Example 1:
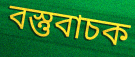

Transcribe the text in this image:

বস্তুবাচক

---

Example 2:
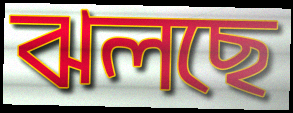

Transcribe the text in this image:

ঝলছে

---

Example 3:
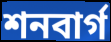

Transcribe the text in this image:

শনবার্গ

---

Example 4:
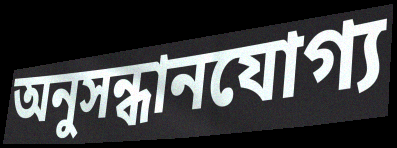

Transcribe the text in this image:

অনুসন্ধানযোগ্য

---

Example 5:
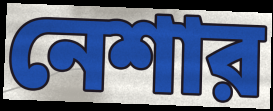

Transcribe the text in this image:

নেশার